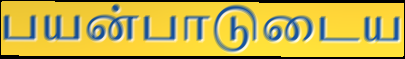
பயன்பாடுடைய